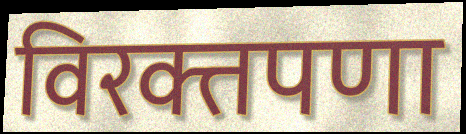
विरक्तपणा